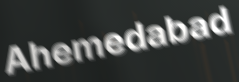
Ahemedabad